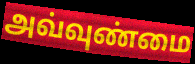
அவ்வுண்மை